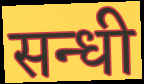
सन्धी